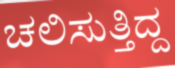
ಚಲಿಸುತ್ತಿದ್ದ